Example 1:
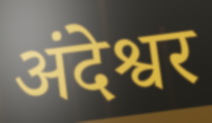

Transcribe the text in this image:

अंदेश्वर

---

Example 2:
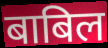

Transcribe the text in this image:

बाबिल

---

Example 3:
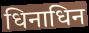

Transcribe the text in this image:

धिनाधिन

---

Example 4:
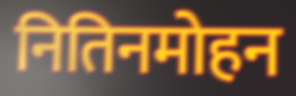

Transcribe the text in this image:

नितिनमोहन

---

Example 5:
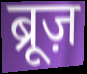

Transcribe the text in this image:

ब्रूज़